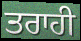
ਤਰਾਹੀ